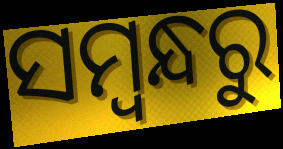
ସମ୍ୱନ୍ଧରୁ